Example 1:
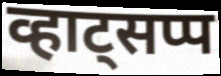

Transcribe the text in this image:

व्हाट्सप्प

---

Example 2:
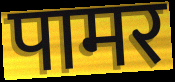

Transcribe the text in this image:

पामर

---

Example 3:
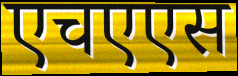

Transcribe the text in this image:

एचएएस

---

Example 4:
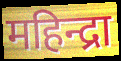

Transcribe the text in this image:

महिन्द्रा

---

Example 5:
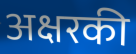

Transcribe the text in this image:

अक्षरकी